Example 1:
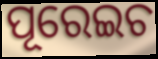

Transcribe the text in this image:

ପୂରେଇଚ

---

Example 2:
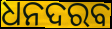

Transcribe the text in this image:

ଧନଦରବ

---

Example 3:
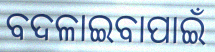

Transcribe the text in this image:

ବଦଳାଇବାପାଇଁ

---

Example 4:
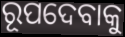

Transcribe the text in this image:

ରୂପଦେବାକୁ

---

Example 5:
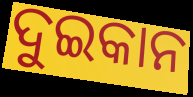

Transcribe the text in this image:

ଦୁଇକାନ